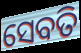
ସେବତି